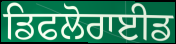
ਡਿਫਲੋਰਾਈਡ